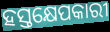
ହସ୍ତକ୍ଷେପକାରୀ